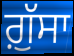
ਗ਼ੁੱਸਾ